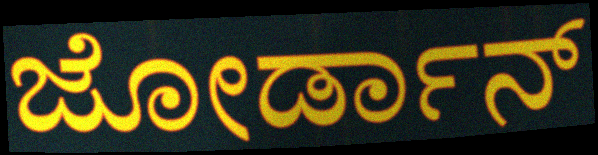
ಜೋರ್ಡಾನ್